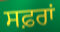
ਸਫ਼ਰਾਂ